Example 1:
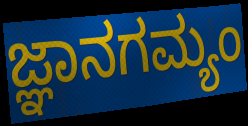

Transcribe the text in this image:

ಜ್ಞಾನಗಮ್ಯಂ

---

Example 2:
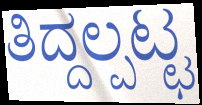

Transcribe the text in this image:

ತಿದ್ದಲ್ಪಟ್ಟ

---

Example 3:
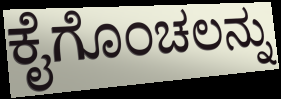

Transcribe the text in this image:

ಕೈಗೊಂಚಲನ್ನು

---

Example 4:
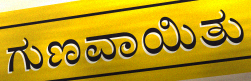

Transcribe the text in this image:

ಗುಣವಾಯಿತು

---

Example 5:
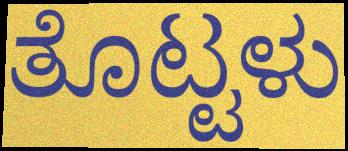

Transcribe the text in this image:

ತೊಟ್ಟಳು